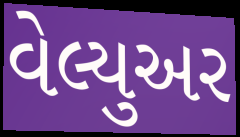
વેલ્યુઅર